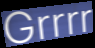
Grrrr